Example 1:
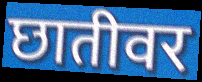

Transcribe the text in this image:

छातीवर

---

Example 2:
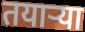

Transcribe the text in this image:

तयाऱ्या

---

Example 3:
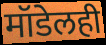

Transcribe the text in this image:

मॉडेलही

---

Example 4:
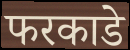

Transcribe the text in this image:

फरकाडे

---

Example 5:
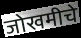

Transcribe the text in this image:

जोखमीचे